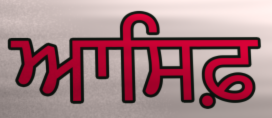
ਆਸਿਫ਼